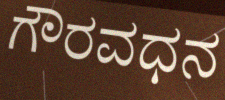
ಗೌರವಧನ